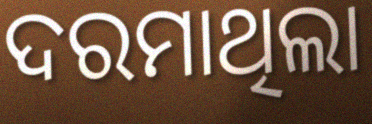
ଦରମାଥିଲା